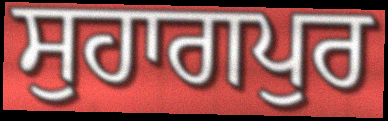
ਸੁਹਾਗਪੁਰ